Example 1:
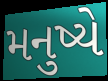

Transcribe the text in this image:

મનુષ્યે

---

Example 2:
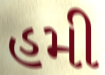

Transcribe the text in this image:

હમી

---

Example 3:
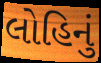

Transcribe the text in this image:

લોહિનું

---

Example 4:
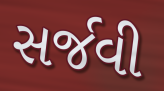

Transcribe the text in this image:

સર્જવી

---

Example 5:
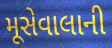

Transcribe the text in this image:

મૂસેવાલાની